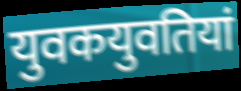
युवकयुवतियां